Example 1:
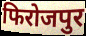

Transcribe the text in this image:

फिरोजपुर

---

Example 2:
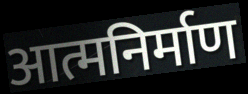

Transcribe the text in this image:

आत्मनिर्माण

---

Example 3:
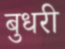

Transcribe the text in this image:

बुधरी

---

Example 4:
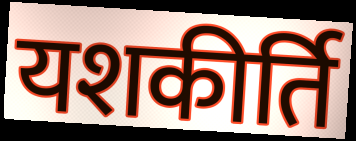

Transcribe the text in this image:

यशकीर्ति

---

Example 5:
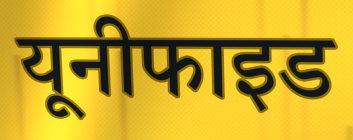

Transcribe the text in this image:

यूनीफाइड